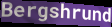
Bergshrund